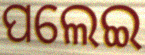
ପଲେଇ